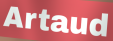
Artaud